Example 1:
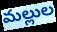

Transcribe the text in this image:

మల్లుల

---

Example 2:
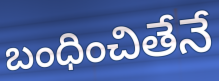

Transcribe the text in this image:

బంధించితేనే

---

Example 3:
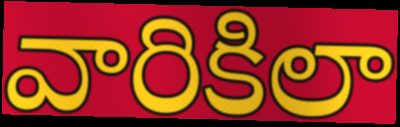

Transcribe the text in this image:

వారికిలా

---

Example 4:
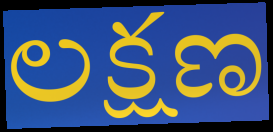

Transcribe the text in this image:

లక్షణ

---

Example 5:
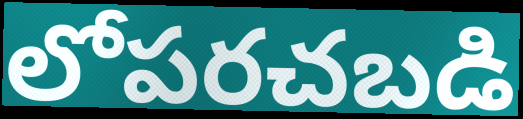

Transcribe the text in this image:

లోపరచబడి